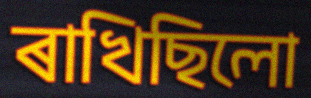
ৰাখিছিলো